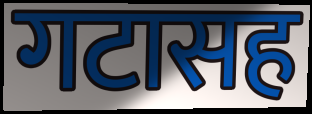
गटासह